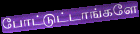
போட்டுட்டாங்களே